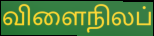
விளைநிலப்